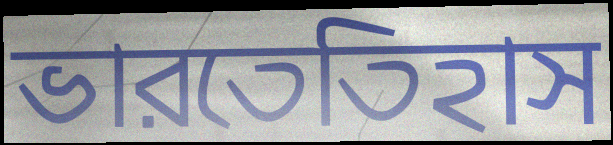
ভারতেতিহাস